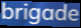
brigade